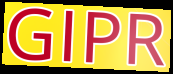
GIPR